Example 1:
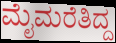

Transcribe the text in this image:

ಮೈಮರೆತಿದ್ದ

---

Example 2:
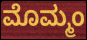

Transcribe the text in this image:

ಮೊಮ್ಮಂ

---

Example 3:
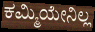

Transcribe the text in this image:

ಕಮ್ಮಿಯೇನಿಲ್ಲ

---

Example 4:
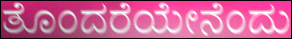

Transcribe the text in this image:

ತೊಂದರೆಯೇನೆಂದು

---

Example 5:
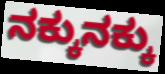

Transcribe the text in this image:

ನಕ್ಕುನಕ್ಕು